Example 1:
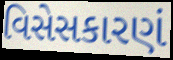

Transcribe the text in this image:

વિસેસકારણં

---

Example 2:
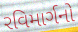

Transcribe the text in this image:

રવિમાર્ગનો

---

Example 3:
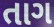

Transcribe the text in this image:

તાગ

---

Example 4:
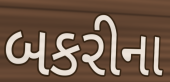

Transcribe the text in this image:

બકરીના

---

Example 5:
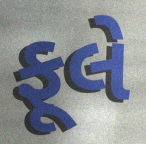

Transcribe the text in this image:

ફૂલે